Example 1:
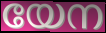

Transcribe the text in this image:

യേന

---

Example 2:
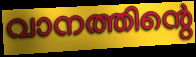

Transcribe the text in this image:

വാനത്തിന്റെ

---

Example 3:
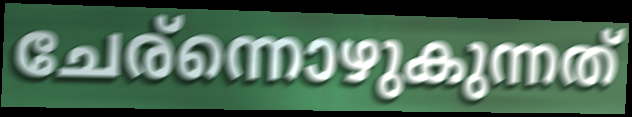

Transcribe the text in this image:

ചേര്ന്നൊഴുകുന്നത്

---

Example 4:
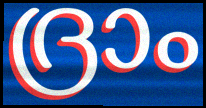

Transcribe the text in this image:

ദ്രാം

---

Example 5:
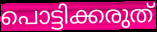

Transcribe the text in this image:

പൊട്ടിക്കരുത്